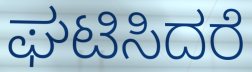
ಘಟಿಸಿದರೆ